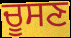
ਚੂਸਣ